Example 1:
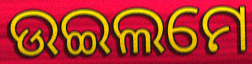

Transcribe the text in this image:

ଉଇଲମେ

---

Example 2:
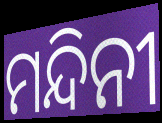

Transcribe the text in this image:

ମନ୍ଦିନୀ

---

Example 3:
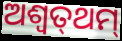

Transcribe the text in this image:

ଅଶ୍ୱତ୍‌ଥମ୍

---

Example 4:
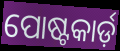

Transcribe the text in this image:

ପୋଷ୍ଟକାର୍ଡ଼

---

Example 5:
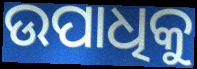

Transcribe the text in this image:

ଉପାଧିକୁ